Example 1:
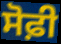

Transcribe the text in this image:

ਸੋਫ਼ੀ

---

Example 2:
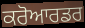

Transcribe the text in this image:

ਕਰੋਆਰਡਰ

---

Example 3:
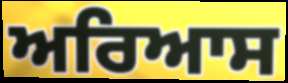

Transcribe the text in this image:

ਅਰਿਆਸ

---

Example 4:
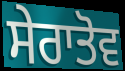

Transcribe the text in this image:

ਸੇਰਾਤੋਵ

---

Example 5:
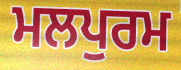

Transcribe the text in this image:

ਮਲਪੁਰਮ